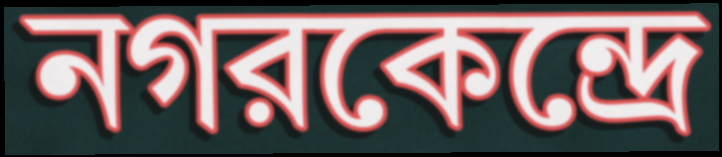
নগরকেন্দ্রে